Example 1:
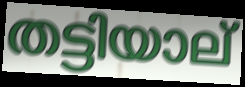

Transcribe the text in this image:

തട്ടിയാല്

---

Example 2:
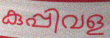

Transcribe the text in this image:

കുപ്പിവള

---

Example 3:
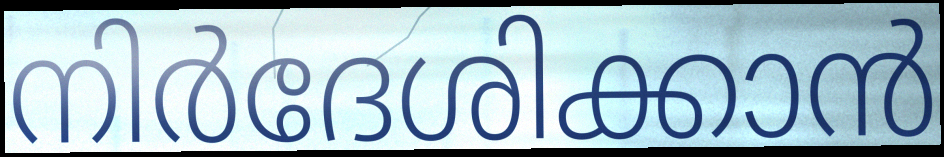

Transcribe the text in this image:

നിർദേശിക്കാൻ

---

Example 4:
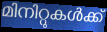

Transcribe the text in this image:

മിനിറ്റുകൾക്ക്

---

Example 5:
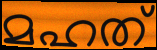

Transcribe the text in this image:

മഹത്